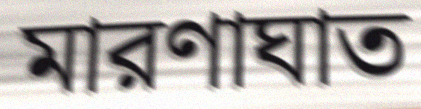
মারণাঘাত